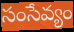
సంసేవ్యం